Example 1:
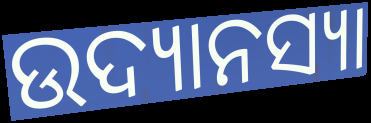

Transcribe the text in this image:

ଉଦ୍ୟାନସ୍ୟା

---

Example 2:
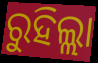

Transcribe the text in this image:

ରୁହିଲ୍ଲା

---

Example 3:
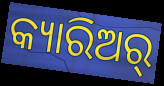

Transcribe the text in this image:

କ୍ୟାରିଅର୍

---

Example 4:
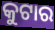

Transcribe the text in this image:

କୁଟାର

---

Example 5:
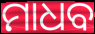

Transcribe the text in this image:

ମାଧବ